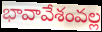
భావావేశంవల్ల